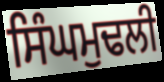
ਸਿੰਘਮੁਢਲੀ